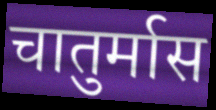
चातुर्मास